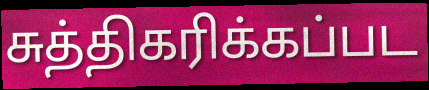
சுத்திகரிக்கப்பட